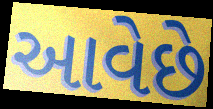
આવેછે